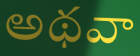
అథవా